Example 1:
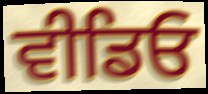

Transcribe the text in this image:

ਵੀਡਿਓ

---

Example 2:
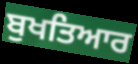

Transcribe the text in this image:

ਬੁਖਤਿਆਰ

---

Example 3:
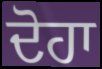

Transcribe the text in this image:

ਦੋਹਾ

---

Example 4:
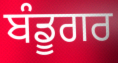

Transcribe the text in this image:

ਬੰਡੂਗਰ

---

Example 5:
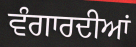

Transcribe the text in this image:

ਵੰਗਾਰਦੀਆਂ